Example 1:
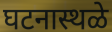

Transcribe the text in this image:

घटनास्थळे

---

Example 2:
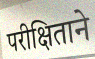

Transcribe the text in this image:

परीक्षिताने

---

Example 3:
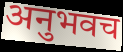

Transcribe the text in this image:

अनुभवच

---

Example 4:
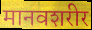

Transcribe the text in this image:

मानवशरीर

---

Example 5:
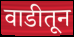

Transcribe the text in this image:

वाडीतून